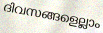
ദിവസങ്ങളെല്ലാം